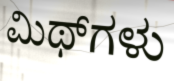
ಮಿಥ್‌ಗಳು